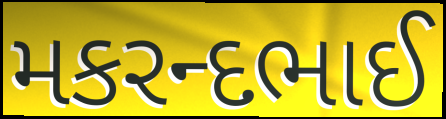
મકરન્દભાઈ